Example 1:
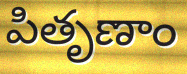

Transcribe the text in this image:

పితృణాం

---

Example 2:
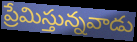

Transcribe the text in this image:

ప్రేమిస్తున్నవాడు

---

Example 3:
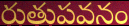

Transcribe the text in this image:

రుతుపవనం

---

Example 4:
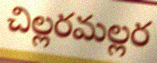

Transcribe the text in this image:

చిల్లరమల్లర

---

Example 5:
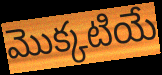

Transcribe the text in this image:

మొక్కటియే